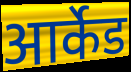
आर्केड